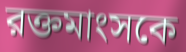
রক্তমাংসকে